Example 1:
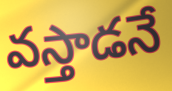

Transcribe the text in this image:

వస్తాడనే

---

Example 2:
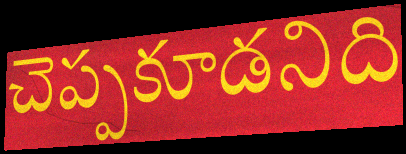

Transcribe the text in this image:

చెప్పకూడనిది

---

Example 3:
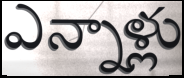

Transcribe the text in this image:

ఎన్నాళ్లు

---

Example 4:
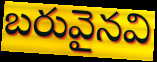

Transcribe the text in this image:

బరువైనవి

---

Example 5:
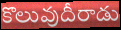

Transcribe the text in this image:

కొలువుదీరాడు